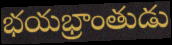
భయభ్రాంతుడు